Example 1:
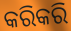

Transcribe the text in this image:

କରିକରି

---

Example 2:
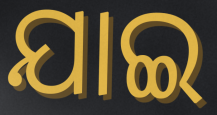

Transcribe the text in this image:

ଯାଇ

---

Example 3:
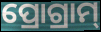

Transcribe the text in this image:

ପ୍ରୋଗ୍ରାମ୍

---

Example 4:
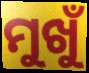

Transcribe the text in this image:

ମୁଖୁଁ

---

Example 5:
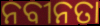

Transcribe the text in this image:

ନବୀନତା